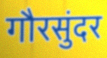
गौरसुंदर